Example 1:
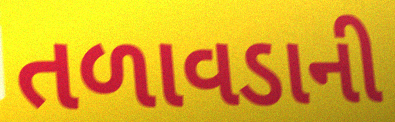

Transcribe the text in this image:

તળાવડાની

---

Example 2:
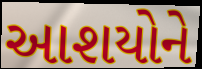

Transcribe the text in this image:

આશયોને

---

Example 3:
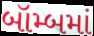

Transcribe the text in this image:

બૉમ્બમાં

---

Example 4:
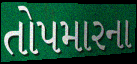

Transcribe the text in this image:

તોપમારના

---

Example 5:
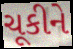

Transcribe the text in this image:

ચૂકીને